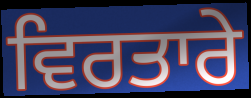
ਵਿਰਤਾਰੇ